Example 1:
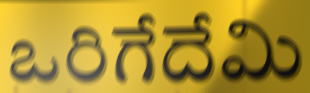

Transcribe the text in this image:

ఒరిగేదేమి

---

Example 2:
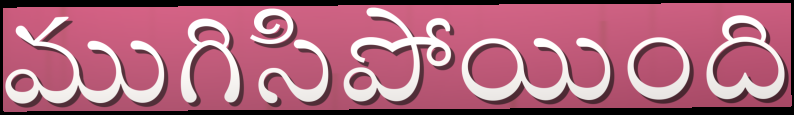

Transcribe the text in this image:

ముగిసిపోయింది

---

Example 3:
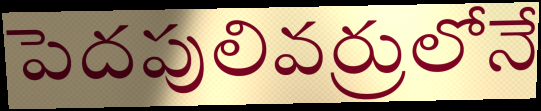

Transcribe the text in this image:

పెదపులివర్రులోనే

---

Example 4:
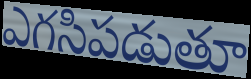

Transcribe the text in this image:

ఎగసిపడుతూ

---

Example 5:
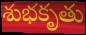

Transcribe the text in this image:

శుభకృతు